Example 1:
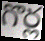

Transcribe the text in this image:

గొర్ల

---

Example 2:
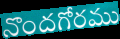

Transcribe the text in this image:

నొందగోరము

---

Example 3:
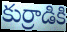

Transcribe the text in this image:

కుర్రాడికి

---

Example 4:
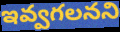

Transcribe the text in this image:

ఇవ్వగలనని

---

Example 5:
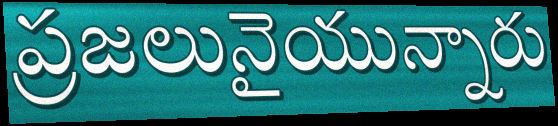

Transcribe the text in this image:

ప్రజలునైయున్నారు